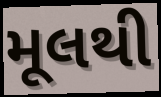
મૂલથી